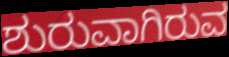
ಶುರುವಾಗಿರುವ